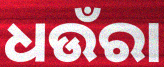
ଧଉଁରା